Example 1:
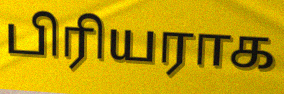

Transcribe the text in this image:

பிரியராக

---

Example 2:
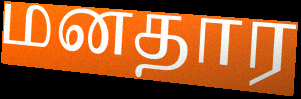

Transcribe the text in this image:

மனதார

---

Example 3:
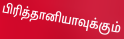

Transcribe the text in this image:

பிரித்தானியாவுக்கும்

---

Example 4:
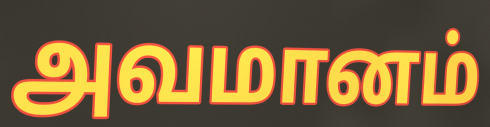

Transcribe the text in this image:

அவமானம்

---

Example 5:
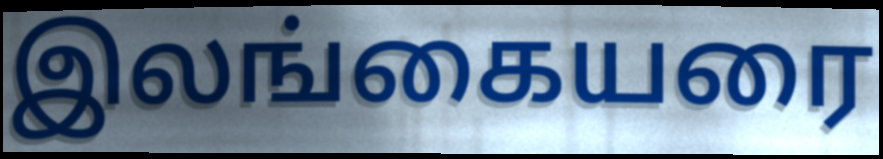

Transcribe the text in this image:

இலங்கையரை